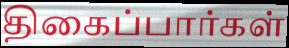
திகைப்பார்கள்